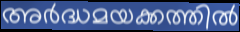
അർദ്ധമയക്കത്തിൽ